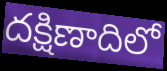
దక్షిణాదిలో